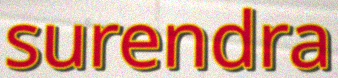
surendra